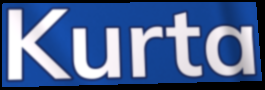
Kurta